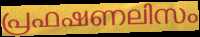
പ്രഫഷണലിസം